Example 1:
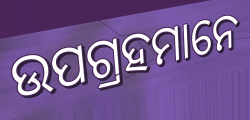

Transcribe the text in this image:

ଉପଗ୍ରହମାନେ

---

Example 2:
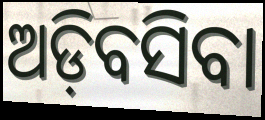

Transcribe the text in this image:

ଅଡ଼ିବସିବା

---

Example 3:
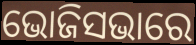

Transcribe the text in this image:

ଭୋଜିସଭାରେ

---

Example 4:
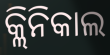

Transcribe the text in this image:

କ୍ଲିନିକାଲ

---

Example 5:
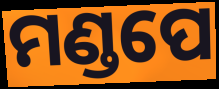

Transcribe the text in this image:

ମଣ୍ଡପେ